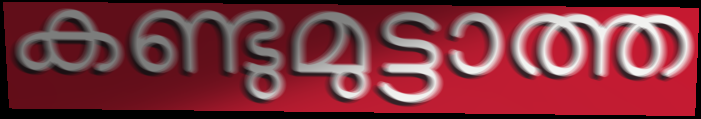
കണ്ടുമുട്ടാത്ത